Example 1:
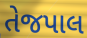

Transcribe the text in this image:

તેજપાલ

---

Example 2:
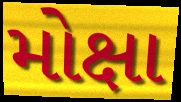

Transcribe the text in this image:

મોક્ષા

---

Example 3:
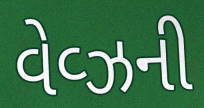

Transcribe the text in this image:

વેવ્ઝની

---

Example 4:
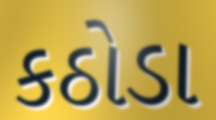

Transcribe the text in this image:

કઠોડા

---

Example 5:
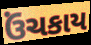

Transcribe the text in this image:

ઉંચકાય